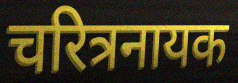
चरित्रनायक